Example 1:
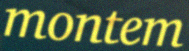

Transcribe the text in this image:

montem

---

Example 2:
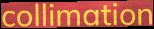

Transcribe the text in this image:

collimation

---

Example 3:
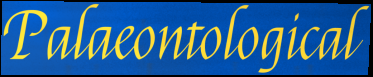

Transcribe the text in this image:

Palaeontological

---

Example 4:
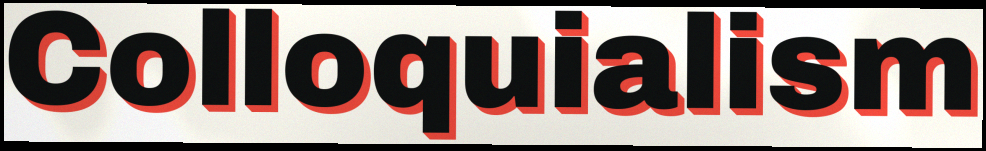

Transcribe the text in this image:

Colloquialism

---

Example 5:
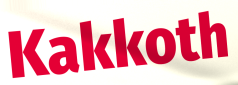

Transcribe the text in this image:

Kakkoth